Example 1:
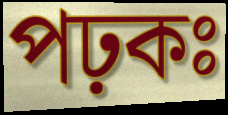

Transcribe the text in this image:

পঢ়কঃ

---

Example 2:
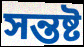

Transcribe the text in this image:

সন্তষ্ট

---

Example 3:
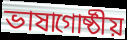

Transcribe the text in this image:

ভাষাগোষ্ঠীয়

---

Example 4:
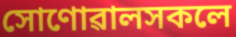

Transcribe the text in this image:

সোণোৱালসকলে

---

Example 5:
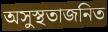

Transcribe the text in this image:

অসুস্থতাজনিত